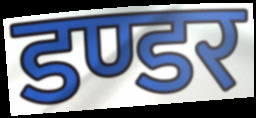
डण्डर